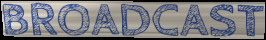
BROADCAST